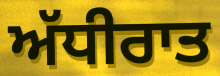
ਅੱਧੀਰਾਤ